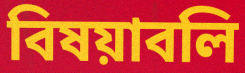
বিষয়াবলি